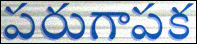
పరుగాపక